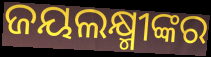
ଜୟଲକ୍ଷ୍ମୀଙ୍କର